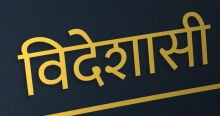
विदेशासी